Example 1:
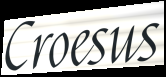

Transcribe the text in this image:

Croesus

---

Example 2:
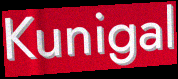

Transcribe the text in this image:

Kunigal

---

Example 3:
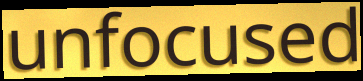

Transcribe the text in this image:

unfocused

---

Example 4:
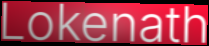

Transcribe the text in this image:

Lokenath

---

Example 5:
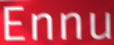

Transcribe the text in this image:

Ennu